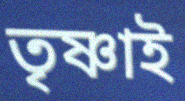
তৃষ্ণাই